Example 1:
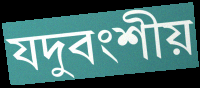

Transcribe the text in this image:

যদুবংশীয়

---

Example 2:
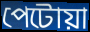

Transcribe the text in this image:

পেটোয়া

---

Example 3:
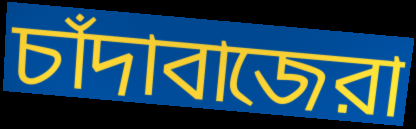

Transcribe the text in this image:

চাঁদাবাজেরা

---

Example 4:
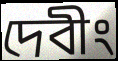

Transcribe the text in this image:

দেবীং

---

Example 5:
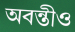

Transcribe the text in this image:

অবন্তীও